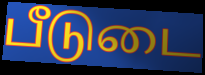
பீடுடை